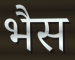
भैस